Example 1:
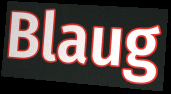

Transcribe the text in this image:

Blaug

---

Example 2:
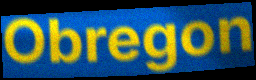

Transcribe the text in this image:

Obregon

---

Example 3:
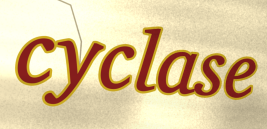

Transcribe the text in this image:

cyclase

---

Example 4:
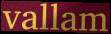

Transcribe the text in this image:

vallam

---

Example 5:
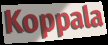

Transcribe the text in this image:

Koppala